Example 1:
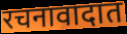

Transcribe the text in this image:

रचनावादात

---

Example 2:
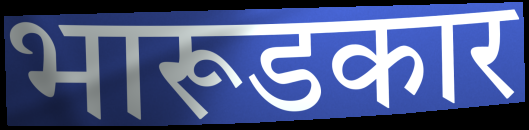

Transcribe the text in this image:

भारूडकार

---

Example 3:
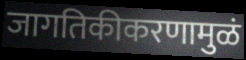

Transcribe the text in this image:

जागतिकीकरणामुळं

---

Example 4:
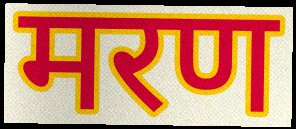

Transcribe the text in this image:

मरण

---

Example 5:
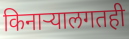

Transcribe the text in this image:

किनाऱ्यालगतही